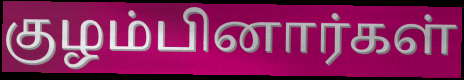
குழம்பினார்கள்